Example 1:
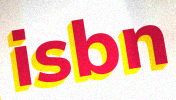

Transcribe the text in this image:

isbn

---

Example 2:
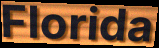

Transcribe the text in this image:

Florida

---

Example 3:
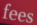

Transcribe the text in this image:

fees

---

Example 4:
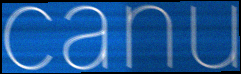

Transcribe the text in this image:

canu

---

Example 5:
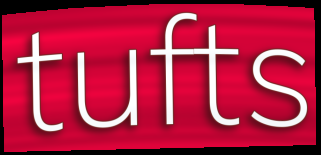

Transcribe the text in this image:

tufts